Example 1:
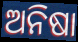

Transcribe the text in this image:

ଅନିଷା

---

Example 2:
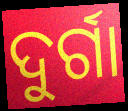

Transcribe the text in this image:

ଦୁର୍ଗା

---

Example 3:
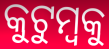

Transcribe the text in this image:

କୁଟୁମ୍ବକୁ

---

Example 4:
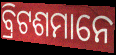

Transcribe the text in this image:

ବ୍ରିଟଶମାନେ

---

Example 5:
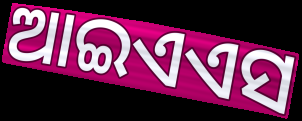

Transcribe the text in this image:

ଆଇଏଏସ